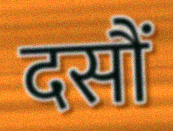
दसौं